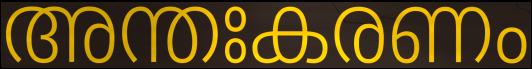
അന്തഃകരണം